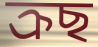
ক্ৰছ